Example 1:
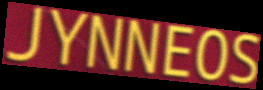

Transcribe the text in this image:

JYNNEOS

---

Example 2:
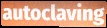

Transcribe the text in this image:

autoclaving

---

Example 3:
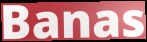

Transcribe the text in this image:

Banas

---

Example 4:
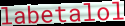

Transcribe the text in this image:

labetalol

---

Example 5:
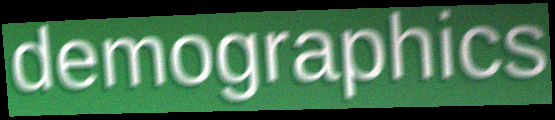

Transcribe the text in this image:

demographics